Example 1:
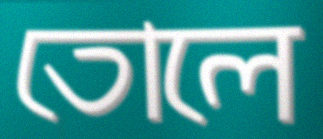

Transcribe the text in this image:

তোলে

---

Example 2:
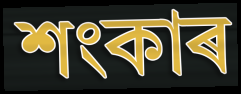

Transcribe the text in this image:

শংকাৰ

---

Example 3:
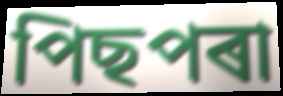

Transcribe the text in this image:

পিছপৰা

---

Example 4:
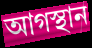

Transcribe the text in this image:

আগস্থান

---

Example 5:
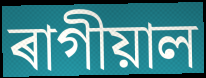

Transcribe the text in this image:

ৰাগীয়াল